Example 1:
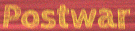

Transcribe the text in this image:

Postwar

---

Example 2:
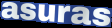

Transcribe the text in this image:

asuras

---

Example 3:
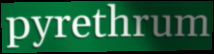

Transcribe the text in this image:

pyrethrum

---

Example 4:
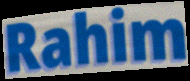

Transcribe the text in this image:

Rahim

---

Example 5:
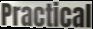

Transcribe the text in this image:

Practical